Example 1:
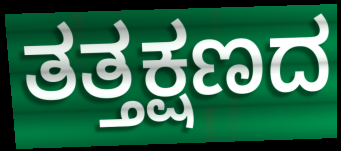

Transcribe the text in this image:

ತತ್ತಕ್ಷಣದ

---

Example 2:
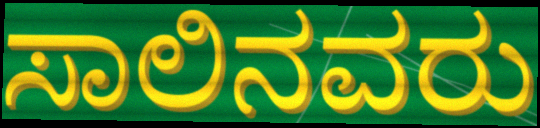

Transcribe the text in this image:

ಸಾಲಿನವರು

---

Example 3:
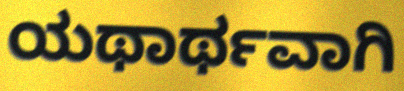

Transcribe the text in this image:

ಯಥಾರ್ಥವಾಗಿ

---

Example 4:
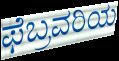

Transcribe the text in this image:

ಫೆಬ್ರವರಿಯ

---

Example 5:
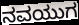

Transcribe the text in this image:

ನವಯುಗ